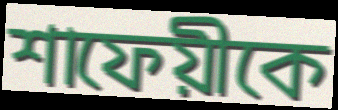
শাফেয়ীকে